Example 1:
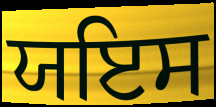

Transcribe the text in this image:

ਯਇਸ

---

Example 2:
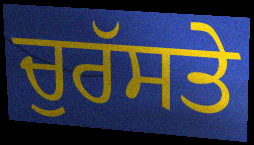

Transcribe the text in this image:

ਚੁਰੱਸਤੇ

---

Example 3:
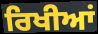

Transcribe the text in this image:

ਰਿਖੀਆਂ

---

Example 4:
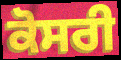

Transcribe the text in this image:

ਕੋਸਰੀ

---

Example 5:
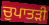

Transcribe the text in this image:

ਚੁਪਾਤੜੀ